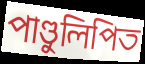
পাণ্ডুলিপিত